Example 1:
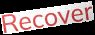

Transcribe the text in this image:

Recover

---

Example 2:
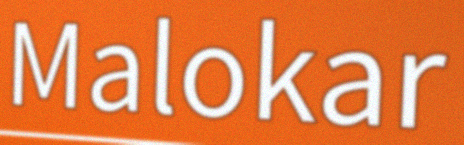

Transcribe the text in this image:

Malokar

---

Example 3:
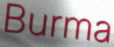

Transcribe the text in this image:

Burma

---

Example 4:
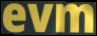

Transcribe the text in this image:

evm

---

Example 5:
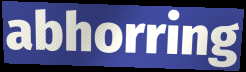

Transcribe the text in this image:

abhorring